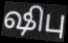
ஷிபு